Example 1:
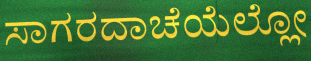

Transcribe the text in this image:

ಸಾಗರದಾಚೆಯೆಲ್ಲೋ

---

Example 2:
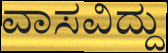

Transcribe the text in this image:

ವಾಸವಿದ್ದು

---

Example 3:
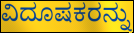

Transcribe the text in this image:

ವಿದೂಷಕರನ್ನು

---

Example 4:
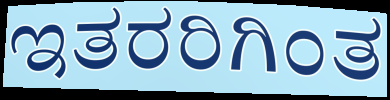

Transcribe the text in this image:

ಇತರರಿಗಿಂತ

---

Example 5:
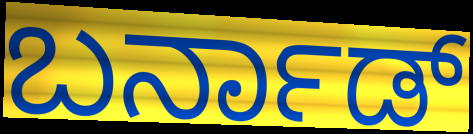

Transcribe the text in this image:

ಬರ್ನಾಡ್